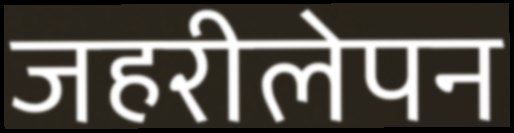
जहरीलेपन